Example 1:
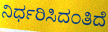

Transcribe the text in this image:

ನಿರ್ಧರಿಸಿದಂತಿದೆ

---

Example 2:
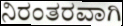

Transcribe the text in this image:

ನಿರಂತರವಾಗಿ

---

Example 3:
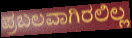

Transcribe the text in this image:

ಪ್ರಬಲವಾಗಿರಲಿಲ್ಲ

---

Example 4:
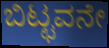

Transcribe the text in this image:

ಬಿಟ್ಟವನೇ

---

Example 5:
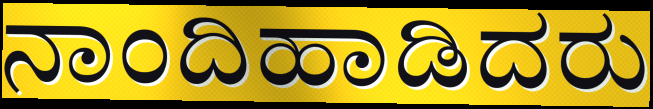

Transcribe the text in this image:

ನಾಂದಿಹಾಡಿದರು